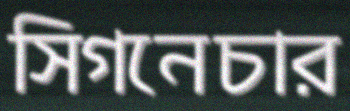
সিগনেচার